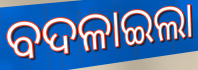
ବଦଳାଇଲା